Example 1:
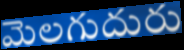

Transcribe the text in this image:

మెలగుదురు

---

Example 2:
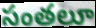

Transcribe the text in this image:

సంతలూ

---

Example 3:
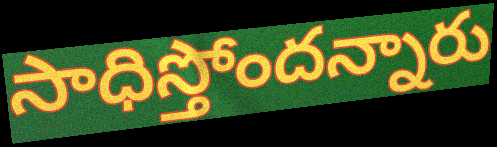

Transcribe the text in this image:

సాధిస్తోందన్నారు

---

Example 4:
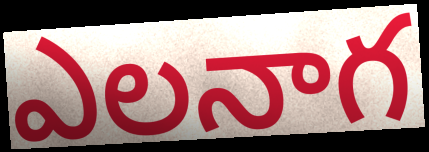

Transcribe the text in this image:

ఎలనాగ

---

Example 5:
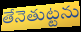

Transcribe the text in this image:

తేనెతుట్టను